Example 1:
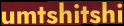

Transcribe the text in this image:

umtshitshi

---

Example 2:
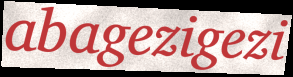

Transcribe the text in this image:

abagezigezi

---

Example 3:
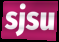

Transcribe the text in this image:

sjsu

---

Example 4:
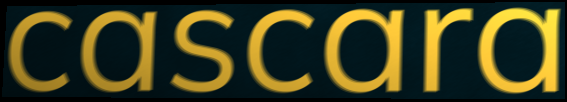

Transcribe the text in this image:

cascara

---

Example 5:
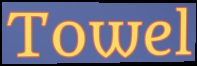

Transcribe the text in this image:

Towel